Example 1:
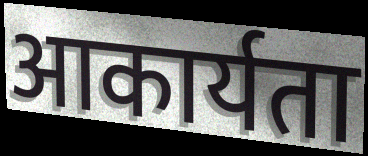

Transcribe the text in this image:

आकार्यता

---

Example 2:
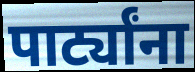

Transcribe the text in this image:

पार्ट्यांना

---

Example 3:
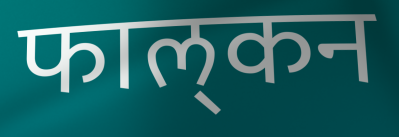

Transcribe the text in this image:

फाल्कन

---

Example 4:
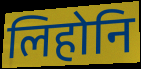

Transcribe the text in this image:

लिहोनि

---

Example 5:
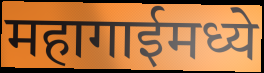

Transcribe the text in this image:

महागाईमध्ये